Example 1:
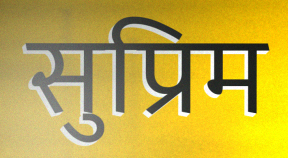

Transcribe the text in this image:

सुप्रिम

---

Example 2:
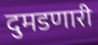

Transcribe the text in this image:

दुमडणारी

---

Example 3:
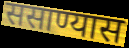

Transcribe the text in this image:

ससाण्यास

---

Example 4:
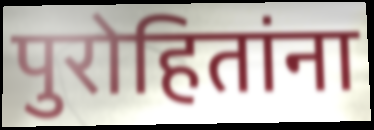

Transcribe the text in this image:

पुरोहितांना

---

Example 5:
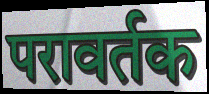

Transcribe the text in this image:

परावर्तक